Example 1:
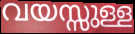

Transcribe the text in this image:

വയസ്സുള്ള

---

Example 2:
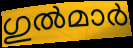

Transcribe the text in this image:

ഗുൽമാർ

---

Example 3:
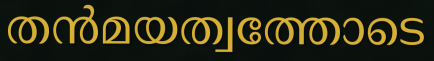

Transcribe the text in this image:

തൻമയത്വത്തോടെ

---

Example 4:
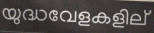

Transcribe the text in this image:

യുദ്ധവേളകളില്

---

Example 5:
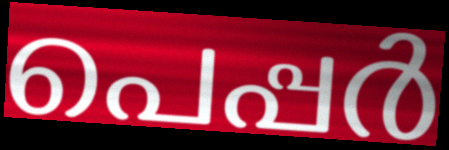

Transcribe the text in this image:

പെപ്പർ